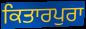
ਕਿਤਾਰਪੁਰਾ